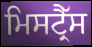
ਮਿਸਟ੍ਰੈੱਸ